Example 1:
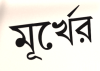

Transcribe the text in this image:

মূর্খের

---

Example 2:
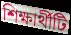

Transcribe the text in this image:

শিক্ষার্থীটি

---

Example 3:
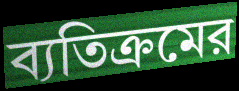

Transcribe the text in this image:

ব্যতিক্রমের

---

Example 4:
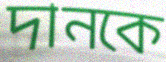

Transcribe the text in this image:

দানকে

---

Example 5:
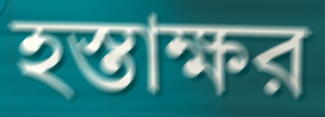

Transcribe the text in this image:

হস্তাক্ষর